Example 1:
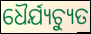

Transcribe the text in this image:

ଧୈର୍ଯ୍ୟଚ୍ୟୁତ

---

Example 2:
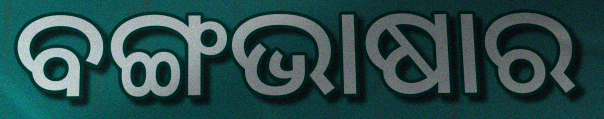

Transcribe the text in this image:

ବଙ୍ଗଭାଷାର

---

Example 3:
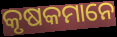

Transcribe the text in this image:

କୃଷକମାନେ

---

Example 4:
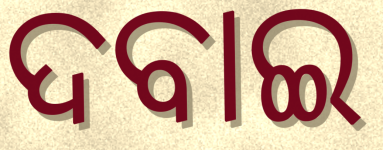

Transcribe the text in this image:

ଦବାଇ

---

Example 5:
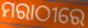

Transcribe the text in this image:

ମରାଠୀରେ